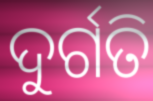
ଦୁର୍ଗତି